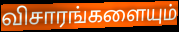
விசாரங்களையும்